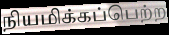
நியமிக்கப்பெற்ற